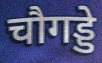
चौगड्डे